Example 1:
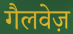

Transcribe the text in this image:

गैलवेज़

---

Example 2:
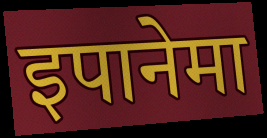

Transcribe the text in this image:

इपानेमा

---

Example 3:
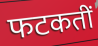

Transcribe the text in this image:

फटकतीं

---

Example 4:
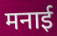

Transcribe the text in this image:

मनाई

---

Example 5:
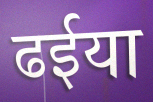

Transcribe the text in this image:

ढईया